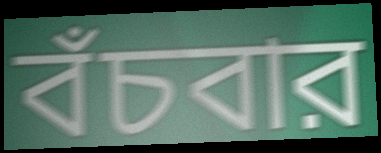
বঁচবার